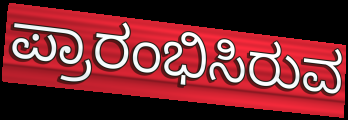
ಪ್ರಾರಂಭಿಸಿರುವ